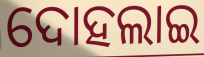
ଦୋହଲାଇ